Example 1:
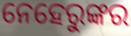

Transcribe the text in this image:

ନେହେରୁଙ୍କର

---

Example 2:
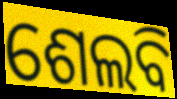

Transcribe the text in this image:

ଶେଲବି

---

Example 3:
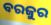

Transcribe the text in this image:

ବରଜୁର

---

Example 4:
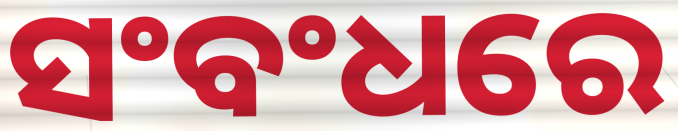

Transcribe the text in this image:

ସଂବଂଧରେ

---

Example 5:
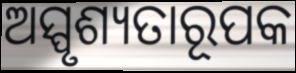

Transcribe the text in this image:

ଅସ୍ପୃଶ୍ୟତାରୂପକ